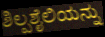
ಶಿಲ್ಪಶೈಲಿಯನ್ನು